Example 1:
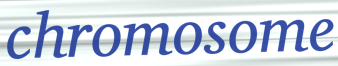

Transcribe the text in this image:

chromosome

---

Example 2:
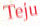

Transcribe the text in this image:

Teju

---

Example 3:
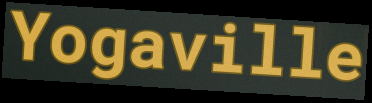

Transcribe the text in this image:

Yogaville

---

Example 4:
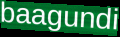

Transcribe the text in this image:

baagundi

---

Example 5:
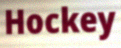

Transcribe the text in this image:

Hockey